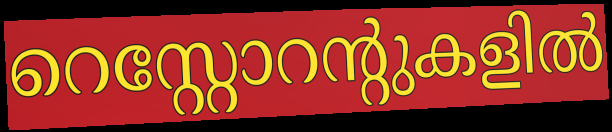
റെസ്റ്റോറന്റുകളിൽ